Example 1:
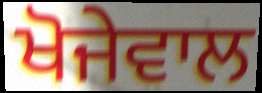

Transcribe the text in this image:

ਖੋਜੇਵਾਲ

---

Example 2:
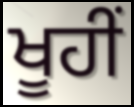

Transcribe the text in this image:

ਖੂਹੀਂ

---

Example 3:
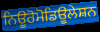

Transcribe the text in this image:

ਨਿਊਰੋਮੋਡਿਊਲੇਸ਼ਨ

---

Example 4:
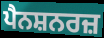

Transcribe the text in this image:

ਪੈਨਸ਼ਨਰਜ਼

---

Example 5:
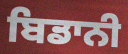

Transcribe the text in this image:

ਬਿਡਾਨੀ